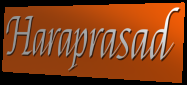
Haraprasad